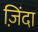
ज़िंदा